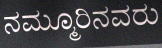
ನಮ್ಮೂರಿನವರು